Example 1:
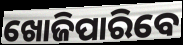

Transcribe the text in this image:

ଖୋଜିପାରିବେ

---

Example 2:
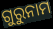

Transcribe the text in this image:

ଗୁରୁନାମ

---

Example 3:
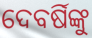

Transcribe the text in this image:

ଦେବର୍ଷିଙ୍କୁ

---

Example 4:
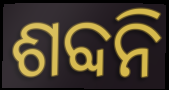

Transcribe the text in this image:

ଶବ୍ଦନି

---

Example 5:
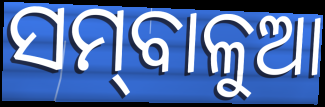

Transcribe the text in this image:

ସମ୍‌ବାଳୁଆ